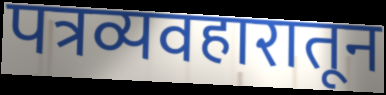
पत्रव्यवहारातून